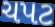
ચપટ